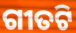
ଗୀତଟି